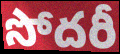
సోదరీ